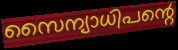
സൈന്യാധിപന്റെ